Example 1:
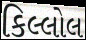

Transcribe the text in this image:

કિલ્લોલ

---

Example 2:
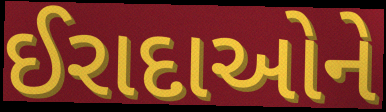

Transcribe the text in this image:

ઈરાદાઓને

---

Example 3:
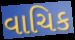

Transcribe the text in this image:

વાચિક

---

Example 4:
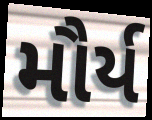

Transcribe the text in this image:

મૌર્ય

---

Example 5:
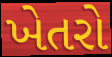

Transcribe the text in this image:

ખેતરો